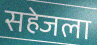
सहेजला